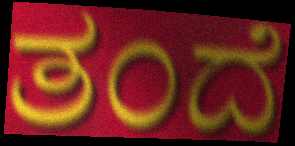
ತಂದೆ